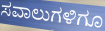
ಸವಾಲುಗಳಿಗೂ